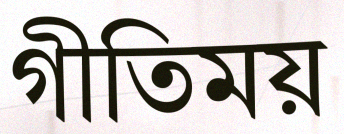
গীতিময়